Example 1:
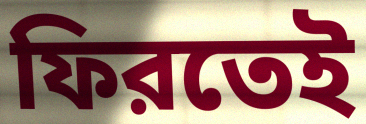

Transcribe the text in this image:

ফিরতেই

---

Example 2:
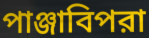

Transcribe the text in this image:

পাঞ্জাবিপরা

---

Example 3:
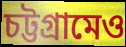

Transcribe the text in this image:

চট্টগ্রামেও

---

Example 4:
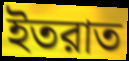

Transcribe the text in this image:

ইতরাত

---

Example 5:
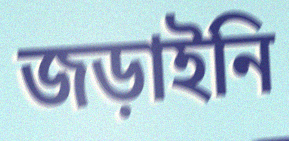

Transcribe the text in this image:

জড়াইনি